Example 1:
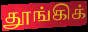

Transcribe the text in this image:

தூங்கிக்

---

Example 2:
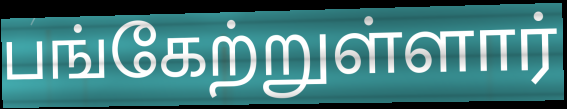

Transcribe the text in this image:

பங்கேற்றுள்ளார்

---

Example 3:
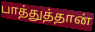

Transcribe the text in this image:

பாத்துத்தான்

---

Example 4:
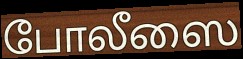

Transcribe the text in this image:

போலீஸை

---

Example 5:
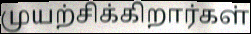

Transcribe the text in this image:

முயற்சிக்கிறார்கள்